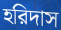
হরিদাস